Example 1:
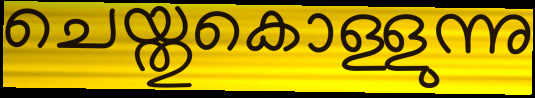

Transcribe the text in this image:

ചെയ്തുകൊള്ളുന്നു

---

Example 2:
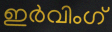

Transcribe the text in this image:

ഇർവിംഗ്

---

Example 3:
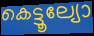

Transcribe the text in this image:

കെട്ടൂല്യോ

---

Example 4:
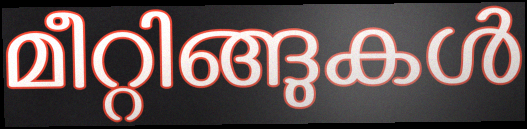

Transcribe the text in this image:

മീറ്റിങ്ങുകൾ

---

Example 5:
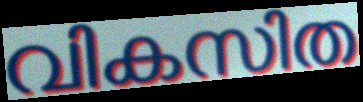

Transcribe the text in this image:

വികസിത